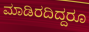
ಮಾಡಿರದಿದ್ದರೂ